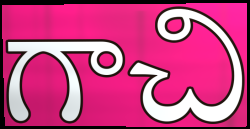
గాచి